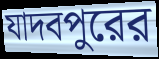
যাদবপুরের